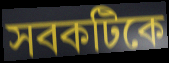
সবকটিকে